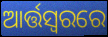
ଆର୍ତ୍ତସ୍ଵରରେ